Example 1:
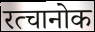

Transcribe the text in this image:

रत्चानोक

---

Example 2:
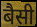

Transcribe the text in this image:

बैसी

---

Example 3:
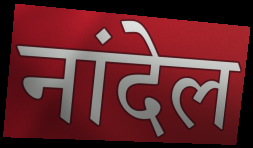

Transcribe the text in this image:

नांदेल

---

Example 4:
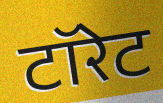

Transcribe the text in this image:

टॉरेट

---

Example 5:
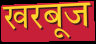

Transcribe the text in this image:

खरबूज